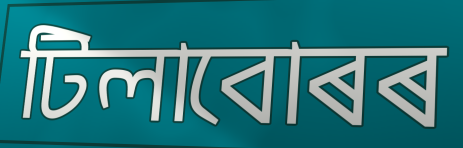
টিলাবোৰৰ